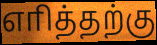
எரித்தற்கு